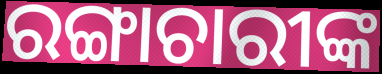
ରଙ୍ଗାଚାରୀଙ୍କ